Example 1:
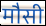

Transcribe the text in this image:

मौसी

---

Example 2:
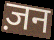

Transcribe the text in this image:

ज़न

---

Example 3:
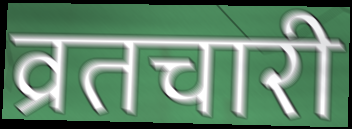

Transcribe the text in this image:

व्रतचारी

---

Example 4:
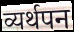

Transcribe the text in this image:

व्यर्थपन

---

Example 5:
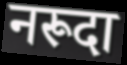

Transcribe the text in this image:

नरूदा